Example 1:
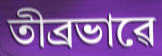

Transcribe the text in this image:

তীব্ৰভাৱে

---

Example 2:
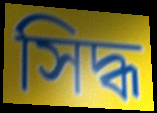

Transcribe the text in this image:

সিদ্ধ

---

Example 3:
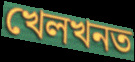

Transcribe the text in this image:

খেলখনত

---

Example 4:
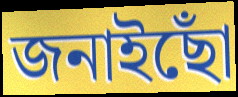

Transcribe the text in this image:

জনাইছোঁ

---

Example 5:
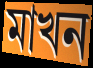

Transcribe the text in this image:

মাখন